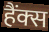
हैंक्‍स